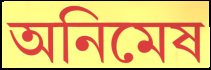
অনিমেষ